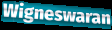
Wigneswaran